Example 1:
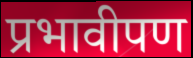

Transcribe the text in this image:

प्रभावीपण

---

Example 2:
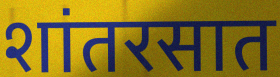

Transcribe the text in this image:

शांतरसात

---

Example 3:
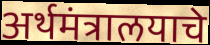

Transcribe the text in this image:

अर्थमंत्रालयाचे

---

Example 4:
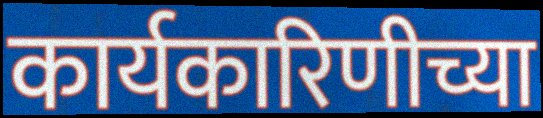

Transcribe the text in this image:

कार्यकारिणीच्या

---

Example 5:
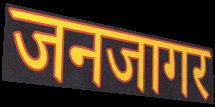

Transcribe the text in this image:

जनजागर